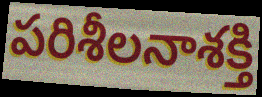
పరిశీలనాశక్తి